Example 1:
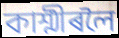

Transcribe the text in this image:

কাশ্মীৰলৈ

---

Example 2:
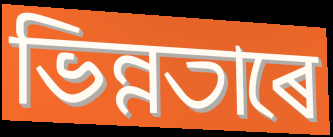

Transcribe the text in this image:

ভিন্নতাৰে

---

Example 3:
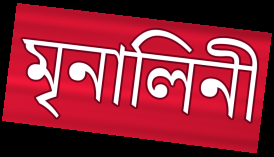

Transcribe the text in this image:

মৃনালিনী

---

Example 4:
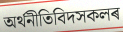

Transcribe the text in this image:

অৰ্থনীতিবিদসকলৰ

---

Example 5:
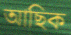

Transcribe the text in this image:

আছিক